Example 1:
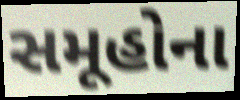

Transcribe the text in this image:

સમૂહોના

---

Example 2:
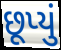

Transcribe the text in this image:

છૂપ્યું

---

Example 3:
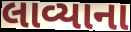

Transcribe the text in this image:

લાવ્યાના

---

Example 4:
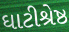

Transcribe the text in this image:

ઘાટીશ્રેષ્ઠ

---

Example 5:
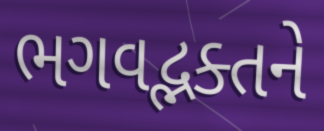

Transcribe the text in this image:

ભગવદ્ભક્તને